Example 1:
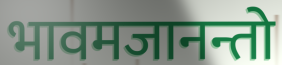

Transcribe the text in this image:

भावमजानन्तो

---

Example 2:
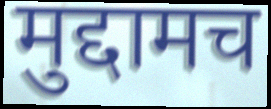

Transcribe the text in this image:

मुद्दामच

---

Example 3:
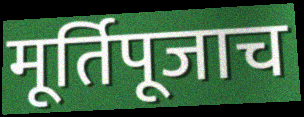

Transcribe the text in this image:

मूर्तिपूजाच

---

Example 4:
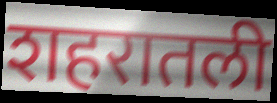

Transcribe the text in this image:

शहरातली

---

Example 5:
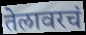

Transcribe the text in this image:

तेलावरचं